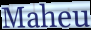
Maheu